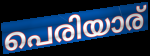
പെരിയാര്